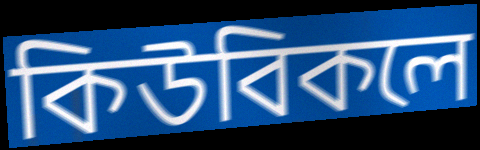
কিউবিকলে